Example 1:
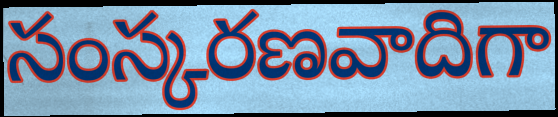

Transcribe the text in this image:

సంస్కరణవాదిగా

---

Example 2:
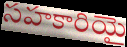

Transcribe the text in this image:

సహకారియై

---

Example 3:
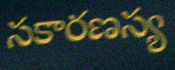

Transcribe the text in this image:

సకారణస్య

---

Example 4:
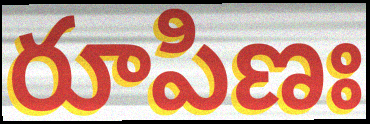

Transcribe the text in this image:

రూపిణః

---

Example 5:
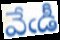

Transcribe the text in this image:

వేఁడీ